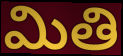
మితి